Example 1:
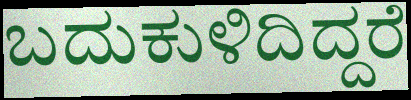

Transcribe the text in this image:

ಬದುಕುಳಿದಿದ್ದರೆ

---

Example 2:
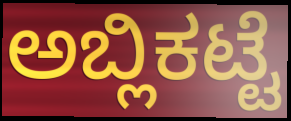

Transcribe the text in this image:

ಅಬ್ಲಿಕಟ್ಟೆ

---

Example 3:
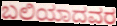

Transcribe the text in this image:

ಬಲಿಯಾದವರ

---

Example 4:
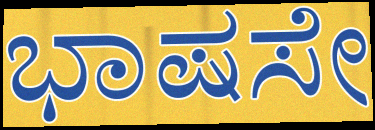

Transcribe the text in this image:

ಭಾಷಸೇ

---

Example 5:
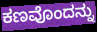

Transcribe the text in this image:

ಕಣವೊಂದನ್ನು